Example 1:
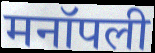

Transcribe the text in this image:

मनॉपली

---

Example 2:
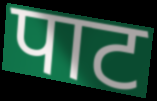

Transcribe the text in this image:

पाट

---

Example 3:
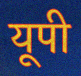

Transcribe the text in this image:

यूपी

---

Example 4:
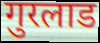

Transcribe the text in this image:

गुरलाड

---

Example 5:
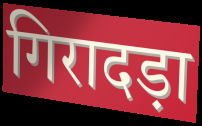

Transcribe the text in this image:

गिरादड़ा